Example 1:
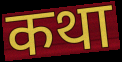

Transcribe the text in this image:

कथा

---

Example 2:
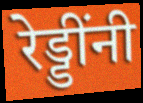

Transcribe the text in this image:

रेड्डींनी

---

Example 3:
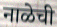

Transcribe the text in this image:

नाळेची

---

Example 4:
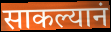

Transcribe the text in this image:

साकल्यानं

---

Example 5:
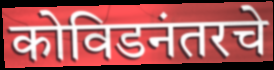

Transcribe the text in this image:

कोविडनंतरचे